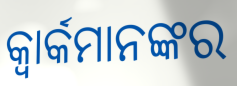
କ୍ୱାର୍କମାନଙ୍କର